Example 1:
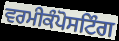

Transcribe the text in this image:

ਵਰਮੀਕੰਪੋਸਟਿੰਗ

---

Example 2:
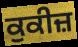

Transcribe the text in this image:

ਕੁਕੀਜ਼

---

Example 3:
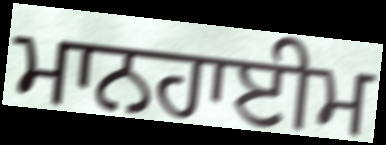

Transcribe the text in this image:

ਮਾਨਹਾਈਮ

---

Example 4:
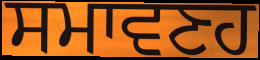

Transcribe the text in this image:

ਸਮਾਵਣਹ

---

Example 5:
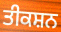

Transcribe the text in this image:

ਤੀਕਸ਼ਨ